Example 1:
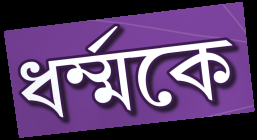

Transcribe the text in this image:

ধর্ম্মকে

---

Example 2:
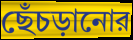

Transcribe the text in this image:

ছেঁচড়ানোর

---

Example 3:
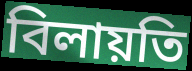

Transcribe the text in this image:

বিলায়তি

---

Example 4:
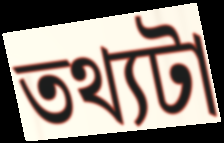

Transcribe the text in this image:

তথ্যটা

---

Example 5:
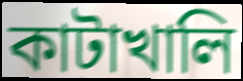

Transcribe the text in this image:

কাটাখালি